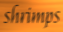
shrimps